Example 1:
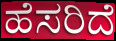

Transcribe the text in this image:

ಹೆಸರಿದೆ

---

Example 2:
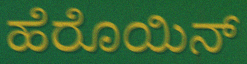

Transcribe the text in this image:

ಹೆರೊಯಿನ್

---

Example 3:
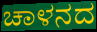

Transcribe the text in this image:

ಚಾಳನದ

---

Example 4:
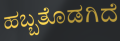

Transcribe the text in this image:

ಹಬ್ಬತೊಡಗಿದೆ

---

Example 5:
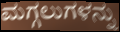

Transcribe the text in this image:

ಮಗ್ಗಲುಗಳನ್ನು